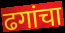
ढगांचा